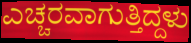
ಎಚ್ಚರವಾಗುತ್ತಿದ್ದಳು